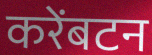
करेंबटन